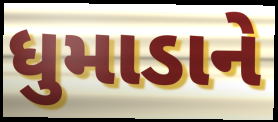
ધુમાડાને